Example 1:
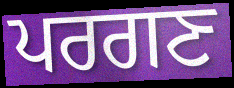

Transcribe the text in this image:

ਪਰਗਣ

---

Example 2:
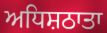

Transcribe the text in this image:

ਅਧਿਸ਼ਠਾਤਾ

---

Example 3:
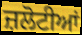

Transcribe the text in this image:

ਜ਼ਲੋਟੀਆਂ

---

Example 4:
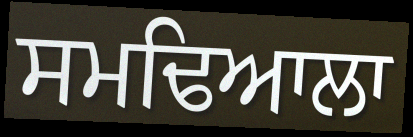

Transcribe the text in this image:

ਸਮਢਿਆਲਾ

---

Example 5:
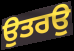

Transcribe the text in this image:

ਉਤਰਉ